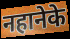
नहानेके